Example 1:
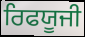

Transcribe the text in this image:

ਰਿਫਯੂਜੀ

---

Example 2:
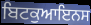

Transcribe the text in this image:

ਬਿਟਕੁਆਇਨਸ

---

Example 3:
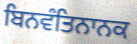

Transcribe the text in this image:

ਬਿਨਵੰਤਿਨਾਨਕ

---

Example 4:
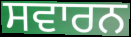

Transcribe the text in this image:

ਸਵਾਰਨ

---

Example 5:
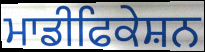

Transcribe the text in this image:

ਮਾਡੀਫਿਕੇਸ਼ਨ